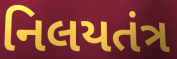
નિલયતંત્ર